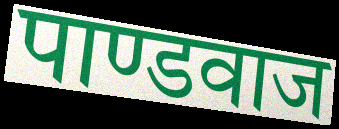
पाण्डवाज